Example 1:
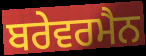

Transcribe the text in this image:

ਬਰੇਵਰਮੈਨ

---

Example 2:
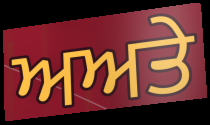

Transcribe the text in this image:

ਅਅਤੇ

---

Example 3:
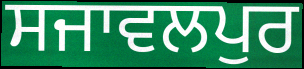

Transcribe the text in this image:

ਸਜਾਵਲਪੁਰ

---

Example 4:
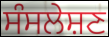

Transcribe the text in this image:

ਸੰਸਲੇਸ਼ਣ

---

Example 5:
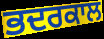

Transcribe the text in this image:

ਭਦਰਕਾਲ